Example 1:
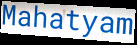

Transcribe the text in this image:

Mahatyam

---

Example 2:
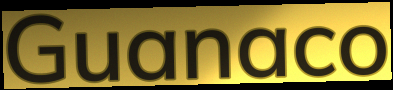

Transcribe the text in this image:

Guanaco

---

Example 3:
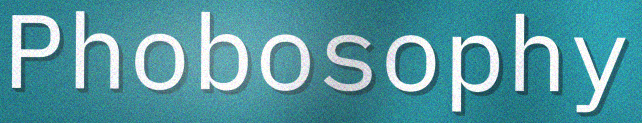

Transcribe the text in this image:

Phobosophy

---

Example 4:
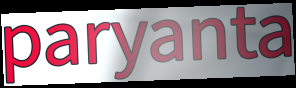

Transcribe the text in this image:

paryanta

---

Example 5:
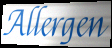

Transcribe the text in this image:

Allergen